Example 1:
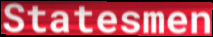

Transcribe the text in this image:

Statesmen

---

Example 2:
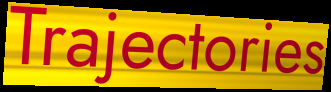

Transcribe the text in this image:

Trajectories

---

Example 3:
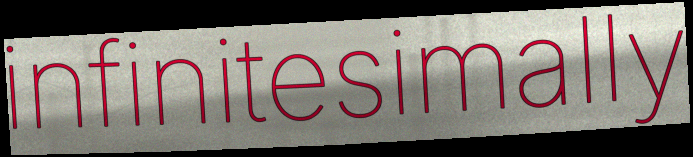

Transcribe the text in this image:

infinitesimally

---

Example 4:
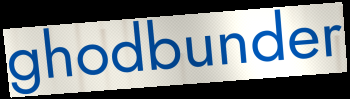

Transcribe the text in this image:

ghodbunder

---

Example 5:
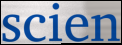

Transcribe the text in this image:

scien